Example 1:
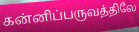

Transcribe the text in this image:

கன்னிப்பருவத்திலே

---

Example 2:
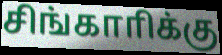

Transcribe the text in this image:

சிங்காரிக்கு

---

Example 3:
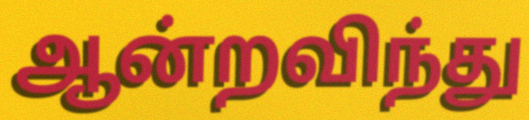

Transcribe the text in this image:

ஆன்றவிந்து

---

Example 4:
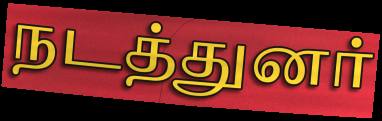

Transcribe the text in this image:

நடத்துனர்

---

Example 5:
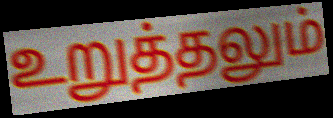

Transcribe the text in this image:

உறுத்தலும்